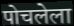
पोचलेला